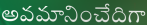
అవమానించేదిగా